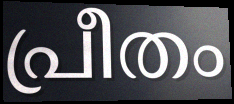
പ്രീതം